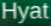
Hyat